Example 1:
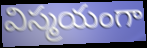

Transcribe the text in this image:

విస్మయంగా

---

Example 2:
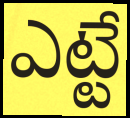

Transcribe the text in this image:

ఎట్టే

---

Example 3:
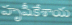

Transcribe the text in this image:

హృషీకేశాయ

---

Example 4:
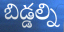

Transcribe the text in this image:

బిడ్డల్ని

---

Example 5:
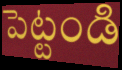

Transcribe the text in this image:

పెట్టండి